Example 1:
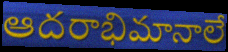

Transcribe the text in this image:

ఆదరాభిమానాలే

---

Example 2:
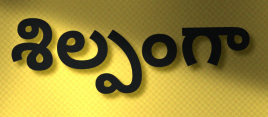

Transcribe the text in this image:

శిల్పంగా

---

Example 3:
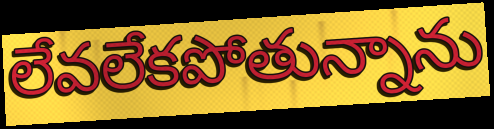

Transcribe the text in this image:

లేవలేకపోతున్నాను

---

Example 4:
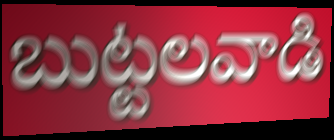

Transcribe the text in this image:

బుట్టలవాడి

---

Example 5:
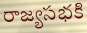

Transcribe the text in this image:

రాజ్యసభకి